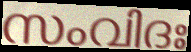
സംവിദഃ